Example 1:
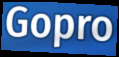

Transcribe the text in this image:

Gopro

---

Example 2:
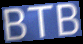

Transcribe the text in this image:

BTB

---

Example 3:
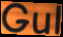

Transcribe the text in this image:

Gul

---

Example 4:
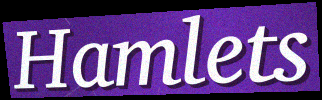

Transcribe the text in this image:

Hamlets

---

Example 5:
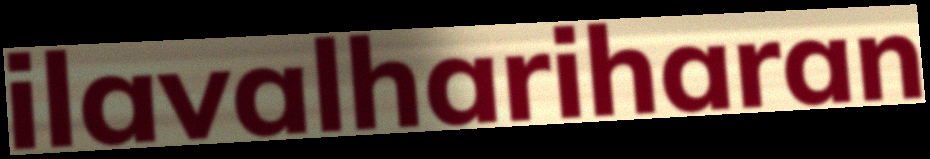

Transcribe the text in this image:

ilavalhariharan